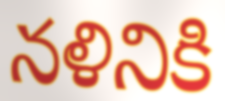
నళినికి